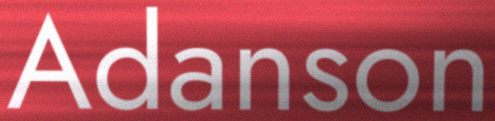
Adanson